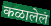
कळालेलं